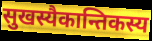
सुखस्यैकान्तिकस्य